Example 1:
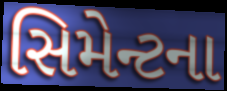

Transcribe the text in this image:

સિમેન્ટના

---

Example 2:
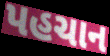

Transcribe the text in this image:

પહચાન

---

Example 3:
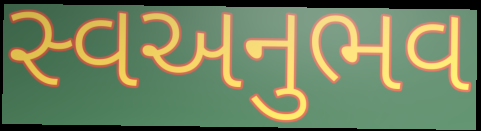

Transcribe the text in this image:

સ્વઅનુભવ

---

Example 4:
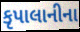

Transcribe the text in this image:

કૃપાલાનીના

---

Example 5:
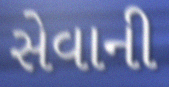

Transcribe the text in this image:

સેવાની